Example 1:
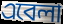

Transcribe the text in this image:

এবেলা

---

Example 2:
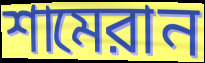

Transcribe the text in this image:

শামেরান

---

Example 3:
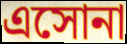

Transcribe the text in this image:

এসোনা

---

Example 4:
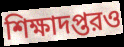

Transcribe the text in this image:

শিক্ষাদপ্তরও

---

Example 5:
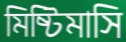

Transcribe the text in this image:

মিষ্টিমাসি